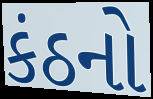
કંઠનો